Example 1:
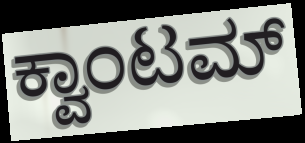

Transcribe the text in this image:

ಕ್ವಾಂಟಮ್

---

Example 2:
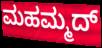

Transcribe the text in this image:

ಮಹಮ್ಮದ್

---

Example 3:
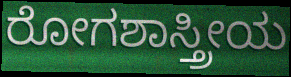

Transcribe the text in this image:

ರೋಗಶಾಸ್ತ್ರೀಯ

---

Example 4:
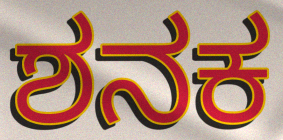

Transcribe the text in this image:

ಶನಕ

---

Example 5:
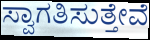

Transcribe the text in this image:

ಸ್ವಾಗತಿಸುತ್ತೇವೆ